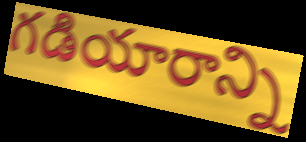
గడియారాన్ని